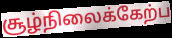
சூழ்நிலைக்கேற்ப